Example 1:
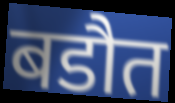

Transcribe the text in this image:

बडौत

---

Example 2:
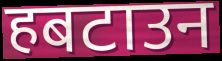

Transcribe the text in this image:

हबटाउन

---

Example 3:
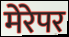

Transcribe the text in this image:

मेरेपर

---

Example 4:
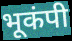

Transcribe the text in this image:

भूकंपी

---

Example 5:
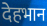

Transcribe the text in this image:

देहभान